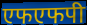
एफएफपी